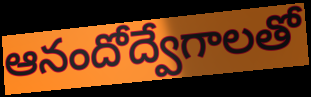
ఆనందోద్వేగాలతో